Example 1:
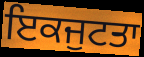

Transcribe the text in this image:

ਇਕਜੁਟਤਾ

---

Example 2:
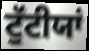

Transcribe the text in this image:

ਟੁੱਟੀਯਾਂ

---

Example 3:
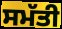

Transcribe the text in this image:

ਸਮੱਤੀ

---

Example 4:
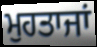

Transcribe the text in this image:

ਮੁਹਤਾਜਾਂ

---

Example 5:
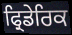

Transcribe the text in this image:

ਫ੍ਰਿਡੇਰਿਕ